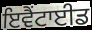
ਇਵੈਂਟਾਈਡ